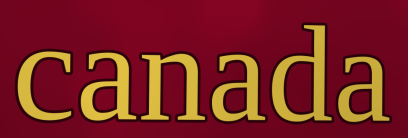
canada